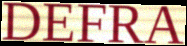
DEFRA